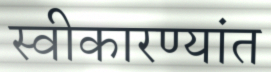
स्वीकारण्यांत